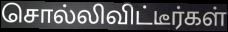
சொல்லிவிட்டீர்கள்